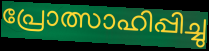
പ്രോത്സാഹിപ്പിച്ചു